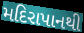
મદિરાપાનથી